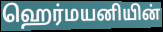
ஹெர்மயனியின்